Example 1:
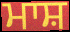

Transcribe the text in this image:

ਮਾਸ਼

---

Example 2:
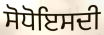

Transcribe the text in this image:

ਸੋਧੋਇਸਦੀ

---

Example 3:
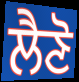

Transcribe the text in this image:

ਲੈਣੋ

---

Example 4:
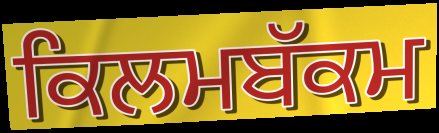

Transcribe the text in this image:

ਕਿਲਮਬੱਕਮ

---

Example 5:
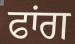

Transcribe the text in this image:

ਫਾਂਗ